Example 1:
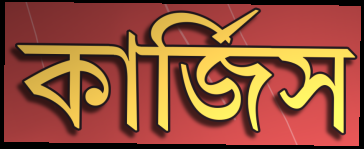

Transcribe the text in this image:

কার্জিস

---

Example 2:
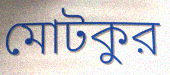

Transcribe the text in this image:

মোটকুর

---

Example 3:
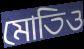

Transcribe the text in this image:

মোতিও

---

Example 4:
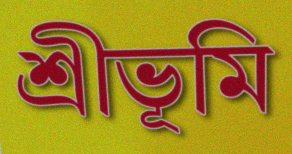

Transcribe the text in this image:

শ্রীভূমি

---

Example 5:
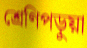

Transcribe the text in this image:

শ্রেণিপড়ুয়া